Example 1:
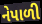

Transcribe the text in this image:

નેપાળી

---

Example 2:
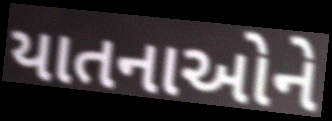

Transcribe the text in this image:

યાતનાઓને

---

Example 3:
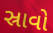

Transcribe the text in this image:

સ્રાવો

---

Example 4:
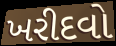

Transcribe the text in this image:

ખરીદવો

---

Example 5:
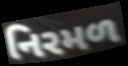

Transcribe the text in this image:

નિરમળ